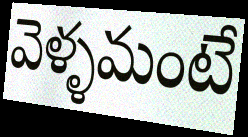
వెళ్ళమంటే